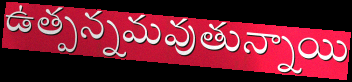
ఉత్పన్నమవుతున్నాయి